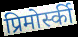
प्रिमोर्स्की